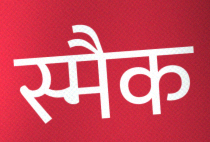
स्मैक